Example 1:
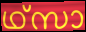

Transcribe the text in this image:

ഥ്സാ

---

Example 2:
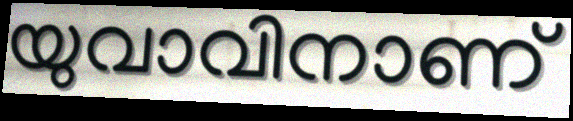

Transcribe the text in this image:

യുവാവിനാണ്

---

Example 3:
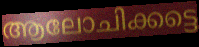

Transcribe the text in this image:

ആലോചിക്കട്ടെ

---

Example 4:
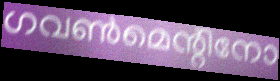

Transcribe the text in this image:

ഗവൺമെന്റിനോ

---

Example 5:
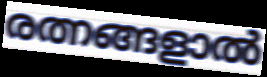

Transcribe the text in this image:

രത്നങ്ങളാൽ